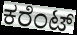
ಕರೆಂಟ್